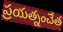
ప్రయత్నంచేత